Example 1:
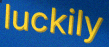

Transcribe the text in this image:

luckily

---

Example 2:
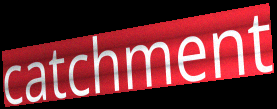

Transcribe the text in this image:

catchment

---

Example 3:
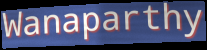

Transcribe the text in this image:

Wanaparthy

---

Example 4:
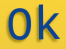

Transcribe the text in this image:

Ok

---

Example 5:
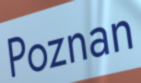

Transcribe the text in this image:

Poznan